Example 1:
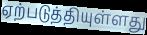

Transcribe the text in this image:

ஏற்படுத்தியுள்ளது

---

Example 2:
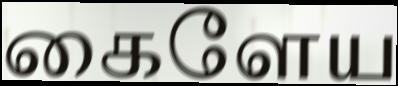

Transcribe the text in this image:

கைளேய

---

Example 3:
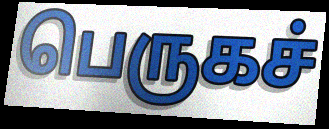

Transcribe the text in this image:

பெருகச்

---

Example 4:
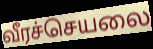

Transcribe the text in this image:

வீரச்செயலை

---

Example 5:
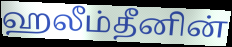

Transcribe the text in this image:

ஹலீம்தீனின்